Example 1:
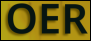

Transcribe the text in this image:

OER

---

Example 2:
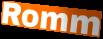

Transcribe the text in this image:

Romm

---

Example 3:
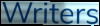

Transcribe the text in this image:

Writers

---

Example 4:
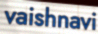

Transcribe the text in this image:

vaishnavi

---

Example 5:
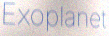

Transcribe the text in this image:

Exoplanet